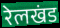
रेलखंड